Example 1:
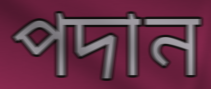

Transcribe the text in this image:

পদান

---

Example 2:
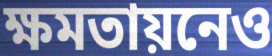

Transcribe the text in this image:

ক্ষমতায়নেও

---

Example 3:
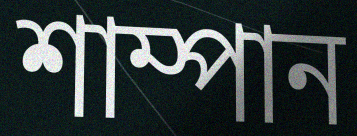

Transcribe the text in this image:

শাম্পান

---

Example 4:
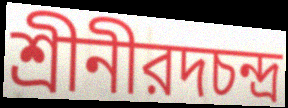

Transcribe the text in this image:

শ্রীনীরদচন্দ্র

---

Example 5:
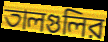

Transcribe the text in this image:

তালগুলির